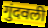
गुंदवली